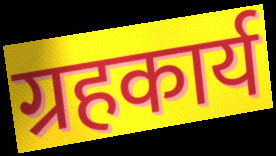
ग्रहकार्य